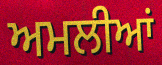
ਅਮਲੀਆਂ